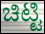
ಚಿಟ್ಟಿ